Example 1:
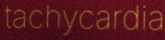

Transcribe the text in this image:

tachycardia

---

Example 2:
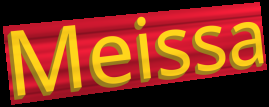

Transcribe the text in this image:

Meissa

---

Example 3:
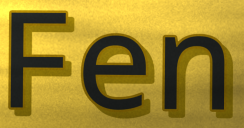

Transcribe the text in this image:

Fen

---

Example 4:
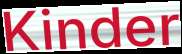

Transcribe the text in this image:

Kinder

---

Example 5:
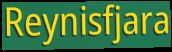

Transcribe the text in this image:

Reynisfjara